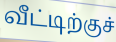
வீட்டிற்குச்